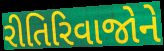
રીતિરિવાજોને